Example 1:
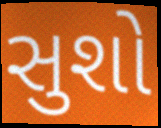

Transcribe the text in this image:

સુશો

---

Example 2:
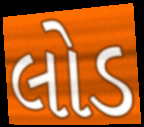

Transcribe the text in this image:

લોડ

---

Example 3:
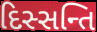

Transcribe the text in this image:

દિસ્સન્તિ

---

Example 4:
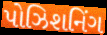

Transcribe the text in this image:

પોઝિશનિંગ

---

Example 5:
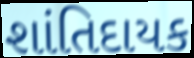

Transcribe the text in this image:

શાંતિદાયક